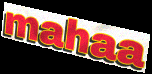
mahaa